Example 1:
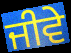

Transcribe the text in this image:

ਜੀਵੇ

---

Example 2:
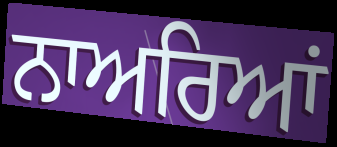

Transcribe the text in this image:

ਨਾਅਰਿਆਂ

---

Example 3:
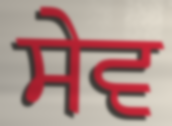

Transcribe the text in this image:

ਸੇਵ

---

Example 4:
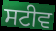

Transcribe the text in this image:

ਸਟੀਵ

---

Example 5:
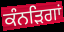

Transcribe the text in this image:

ਕੰਨੜਿਗਾਂ